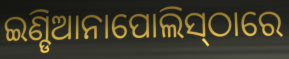
ଇଣ୍ଡିଆନାପୋଲିସ୍‍ଠାରେ